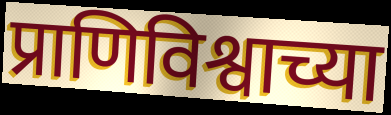
प्राणिविश्वाच्या